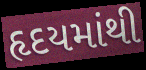
હૃદયમાંથી